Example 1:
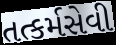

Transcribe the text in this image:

તત્કર્મસેવી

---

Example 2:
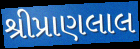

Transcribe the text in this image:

શ્રીપ્રાણલાલ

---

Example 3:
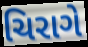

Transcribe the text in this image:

ચિરાગે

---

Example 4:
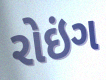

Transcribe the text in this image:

રોઇંગ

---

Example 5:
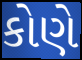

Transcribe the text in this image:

કોણે